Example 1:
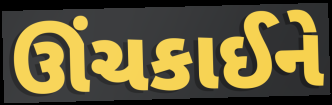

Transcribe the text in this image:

ઊંચકાઈને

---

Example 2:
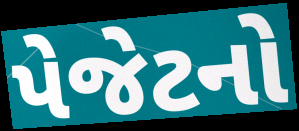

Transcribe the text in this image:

પેજેટનો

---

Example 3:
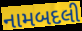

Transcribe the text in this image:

નામબદલી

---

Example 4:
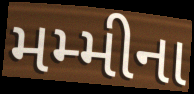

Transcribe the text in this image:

મમ્મીના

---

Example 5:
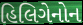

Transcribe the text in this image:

હિલિગેનોન